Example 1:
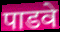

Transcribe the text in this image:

पाडवे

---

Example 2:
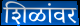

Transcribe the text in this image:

शिळांवर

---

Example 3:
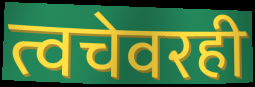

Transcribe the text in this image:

त्वचेवरही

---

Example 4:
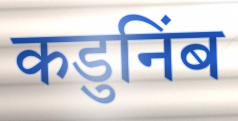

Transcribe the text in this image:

कडुनिंब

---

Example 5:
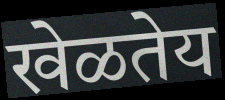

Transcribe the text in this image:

खेळतेय